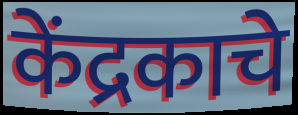
केंद्रकाचे